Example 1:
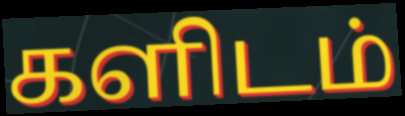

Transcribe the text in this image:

களிடம்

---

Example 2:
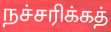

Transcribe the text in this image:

நச்சரிக்கத்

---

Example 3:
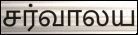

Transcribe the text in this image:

சர்வாலய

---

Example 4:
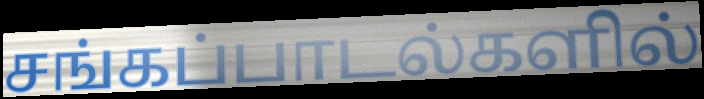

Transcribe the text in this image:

சங்கப்பாடல்களில்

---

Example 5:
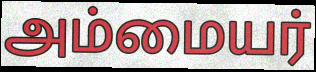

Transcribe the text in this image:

அம்மையர்